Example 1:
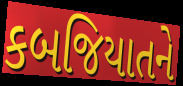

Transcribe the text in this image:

કબજિયાતને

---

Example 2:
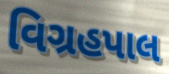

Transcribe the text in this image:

વિગ્રહપાલ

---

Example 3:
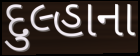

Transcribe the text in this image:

દુલ્હાના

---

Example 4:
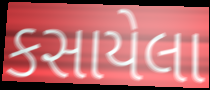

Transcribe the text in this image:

કસાયેલા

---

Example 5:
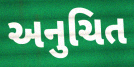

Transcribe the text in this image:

અનુચિત